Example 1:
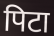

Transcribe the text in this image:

पिटा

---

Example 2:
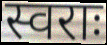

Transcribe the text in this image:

स्वराः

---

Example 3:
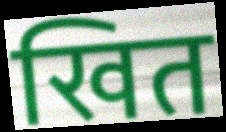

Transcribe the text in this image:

खित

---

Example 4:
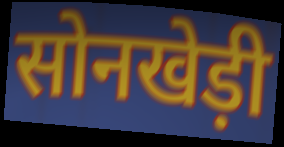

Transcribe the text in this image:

सोनखेड़ी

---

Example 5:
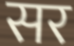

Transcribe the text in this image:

सर